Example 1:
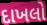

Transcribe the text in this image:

દાખલો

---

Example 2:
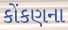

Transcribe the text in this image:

કોંકણના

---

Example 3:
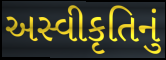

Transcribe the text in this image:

અસ્વીકૃતિનું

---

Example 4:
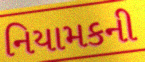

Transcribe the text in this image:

નિયામકની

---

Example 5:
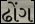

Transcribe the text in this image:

ઢોંગ